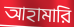
আহামারি